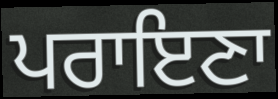
ਪਰਾਇਣਾ